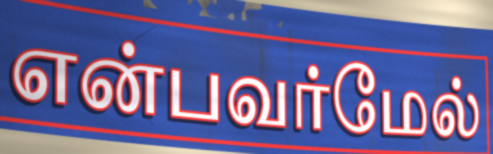
என்பவர்மேல்